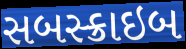
સબસ્ક્રાઇબ